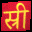
स्री